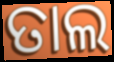
ତାଲ